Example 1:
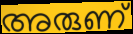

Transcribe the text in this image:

അരുണ്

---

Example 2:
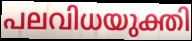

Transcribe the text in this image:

പലവിധയുക്തി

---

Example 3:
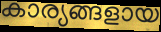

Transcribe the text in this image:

കാര്യങ്ങളായ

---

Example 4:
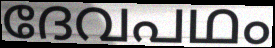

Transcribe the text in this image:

ദേവപഥം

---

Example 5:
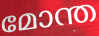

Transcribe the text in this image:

മോന്ത